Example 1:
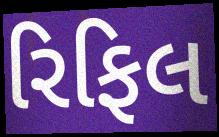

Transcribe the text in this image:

રિફિલ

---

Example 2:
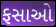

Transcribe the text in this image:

ફસાઓ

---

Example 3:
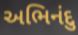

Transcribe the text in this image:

અભિનંદુ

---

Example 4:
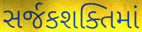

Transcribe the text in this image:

સર્જકશક્તિમાં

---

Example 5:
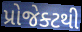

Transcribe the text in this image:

પ્રોજેક્ટથી